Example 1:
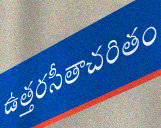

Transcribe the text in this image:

ఉత్తరసీతాచరితం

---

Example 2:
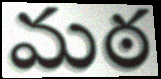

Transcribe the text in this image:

మఠ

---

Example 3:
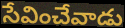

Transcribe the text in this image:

సేవించేవాడు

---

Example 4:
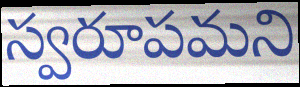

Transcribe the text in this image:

స్వరూపమని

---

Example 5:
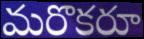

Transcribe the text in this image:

మరొకరూ